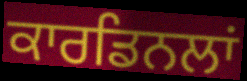
ਕਾਰਡਿਨਲਾਂ